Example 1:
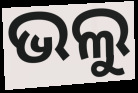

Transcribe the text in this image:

ଭଲୁ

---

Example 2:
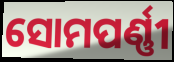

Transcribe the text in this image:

ସୋମପର୍ଣ୍ଣୀ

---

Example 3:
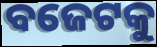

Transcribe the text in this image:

ବଜେଟକୁ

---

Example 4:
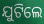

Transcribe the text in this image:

ଯୁଟିଲେ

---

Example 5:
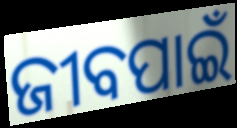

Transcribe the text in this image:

ଜୀବପାଇଁ